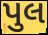
પુલ